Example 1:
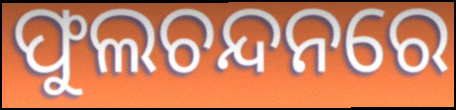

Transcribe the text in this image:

ଫୁଲଚନ୍ଦନରେ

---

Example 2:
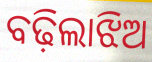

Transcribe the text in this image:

ବଢ଼ିଲାଝିଅ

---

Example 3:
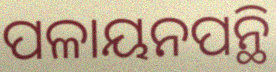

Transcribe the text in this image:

ପଳାୟନପନ୍ଥି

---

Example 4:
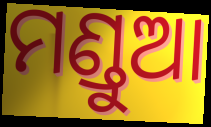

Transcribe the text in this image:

ମଣ୍ଡୁଆ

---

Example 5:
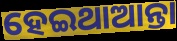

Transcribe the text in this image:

ହେଇଥାଆନ୍ତା